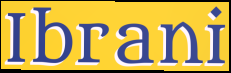
Ibrani